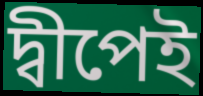
দ্বীপেই